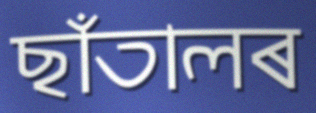
ছাঁতালৰ